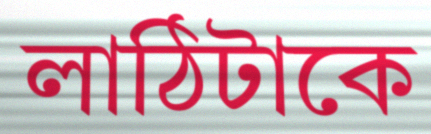
লাঠিটাকে